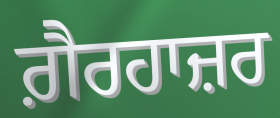
ਗ਼ੈਰਹਾਜ਼ਰ